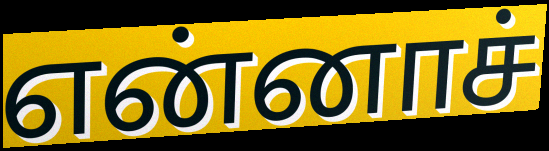
என்னாச்